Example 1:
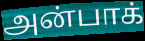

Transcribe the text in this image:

அன்பாக்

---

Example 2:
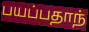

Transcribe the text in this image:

பயப்பதாந்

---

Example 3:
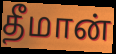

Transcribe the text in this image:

தீமான்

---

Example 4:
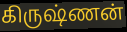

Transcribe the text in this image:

கிருஷ்ணன்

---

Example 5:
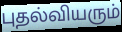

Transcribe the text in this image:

புதல்வியரும்